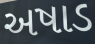
અષાડ